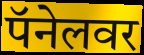
पॅनेलवर